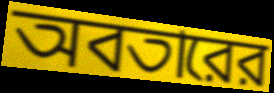
অবতারের